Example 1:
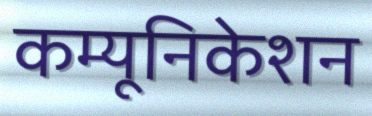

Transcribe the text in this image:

कम्यूनिकेशन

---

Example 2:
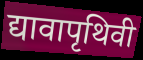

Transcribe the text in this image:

द्यावापृथिवी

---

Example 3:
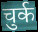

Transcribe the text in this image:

चुर्क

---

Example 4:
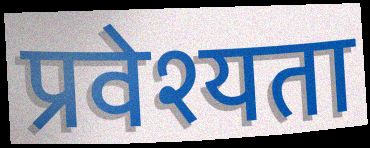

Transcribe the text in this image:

प्रवेश्यता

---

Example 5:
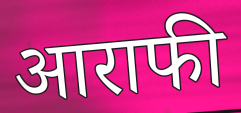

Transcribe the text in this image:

आराफी